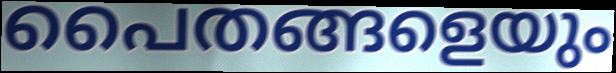
പൈതങ്ങളെയും